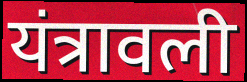
यंत्रावली